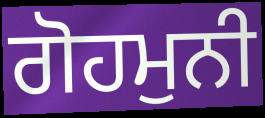
ਗੋਹਮੁਨੀ